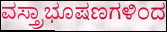
ವಸ್ತ್ರಾಭೂಷಣಗಳಿಂದ